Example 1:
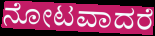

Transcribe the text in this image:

ನೋಟವಾದರೆ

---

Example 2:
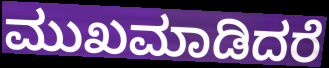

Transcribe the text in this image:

ಮುಖಮಾಡಿದರೆ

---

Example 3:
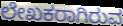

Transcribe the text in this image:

ಲೇಖಕರಾಗಿರುವ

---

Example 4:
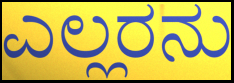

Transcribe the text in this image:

ಎಲ್ಲರನು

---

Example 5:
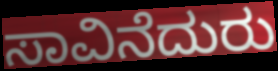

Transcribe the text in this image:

ಸಾವಿನೆದುರು